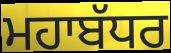
ਮਹਾਬੱਧਰ